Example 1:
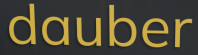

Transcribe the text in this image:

dauber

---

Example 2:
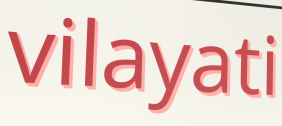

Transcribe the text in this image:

vilayati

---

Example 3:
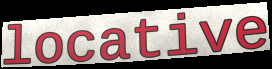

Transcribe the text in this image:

locative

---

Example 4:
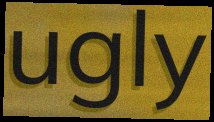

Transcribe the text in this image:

ugly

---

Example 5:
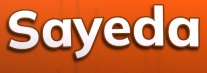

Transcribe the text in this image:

Sayeda